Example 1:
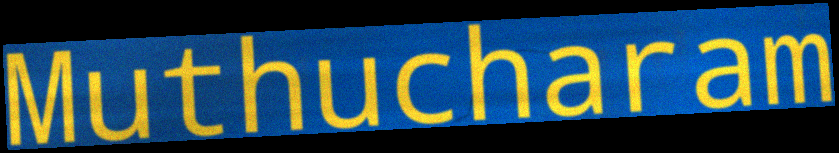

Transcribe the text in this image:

Muthucharam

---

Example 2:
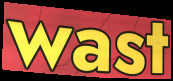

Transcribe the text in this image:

wast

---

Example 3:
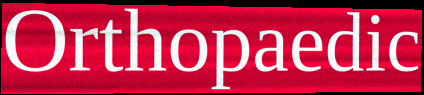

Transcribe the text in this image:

Orthopaedic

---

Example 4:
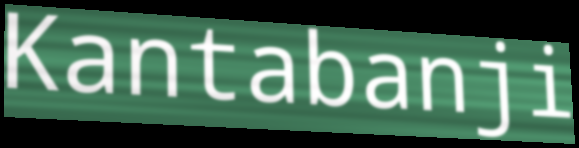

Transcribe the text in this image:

Kantabanji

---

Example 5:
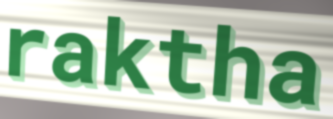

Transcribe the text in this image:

raktha